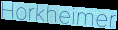
Horkheimer